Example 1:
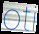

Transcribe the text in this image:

oti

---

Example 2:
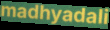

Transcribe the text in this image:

madhyadali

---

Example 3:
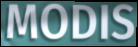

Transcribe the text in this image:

MODIS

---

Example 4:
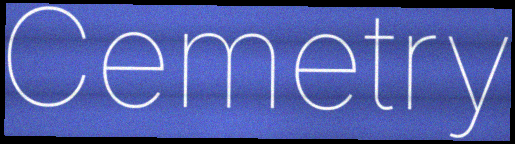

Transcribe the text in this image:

Cemetry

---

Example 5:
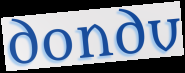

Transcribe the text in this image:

dondu